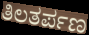
ತಿಲತರ್ಪಣ